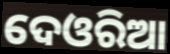
ଦେଓରିଆ